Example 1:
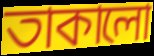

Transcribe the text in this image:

তাকালো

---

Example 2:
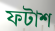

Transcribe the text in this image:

ফটাশ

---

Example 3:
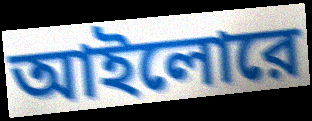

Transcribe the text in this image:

আইলোরে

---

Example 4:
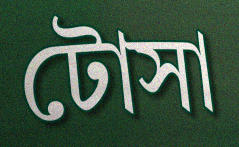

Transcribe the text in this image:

টোসা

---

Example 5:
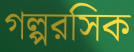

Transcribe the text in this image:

গল্পরসিক